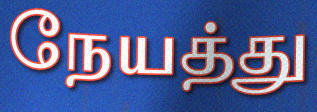
நேயத்து